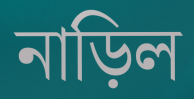
নাড়িল